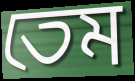
তেম